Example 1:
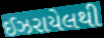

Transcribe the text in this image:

ઈઝરાયેલથી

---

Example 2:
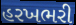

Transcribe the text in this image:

હરખભરી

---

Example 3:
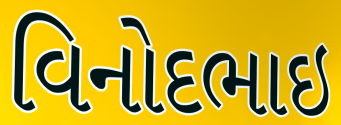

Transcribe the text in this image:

વિનોદભાઇ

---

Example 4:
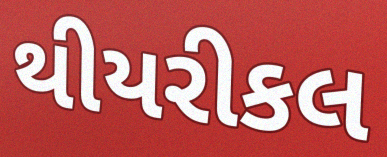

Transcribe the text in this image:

થીયરીકલ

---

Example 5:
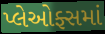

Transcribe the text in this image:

પ્લેઓફ્સમાં